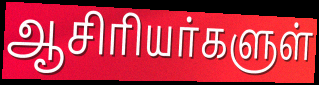
ஆசிரியர்களுள்